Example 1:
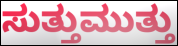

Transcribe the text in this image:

ಸುತ್ತುಮುತ್ತು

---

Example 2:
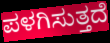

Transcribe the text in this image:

ಪಳಗಿಸುತ್ತದೆ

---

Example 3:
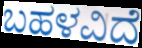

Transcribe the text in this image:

ಬಹಳವಿದೆ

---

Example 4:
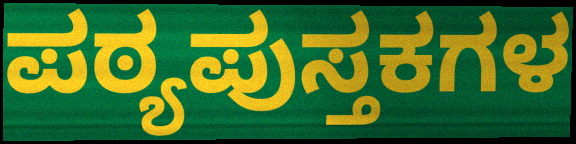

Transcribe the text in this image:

ಪಠ್ಯಪುಸ್ತಕಗಳ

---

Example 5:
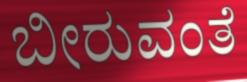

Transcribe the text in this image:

ಬೀರುವಂತೆ